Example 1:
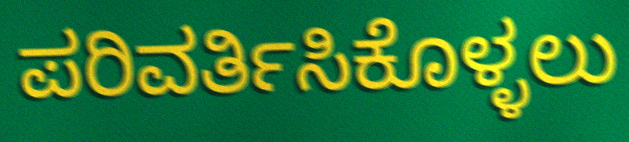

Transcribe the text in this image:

ಪರಿವರ್ತಿಸಿಕೊಳ್ಳಲು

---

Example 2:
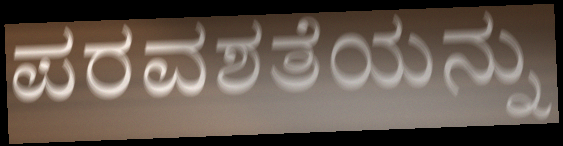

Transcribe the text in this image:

ಪರವಶತೆಯನ್ನು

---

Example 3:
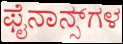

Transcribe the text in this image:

ಫೈನಾನ್ಸ್‌ಗಳ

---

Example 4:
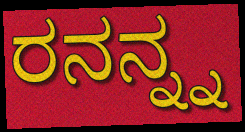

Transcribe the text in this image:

ರನನ್ನ್ನ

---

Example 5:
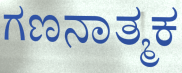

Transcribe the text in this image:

ಗಣನಾತ್ಮಕ